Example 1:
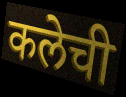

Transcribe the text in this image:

कलेची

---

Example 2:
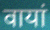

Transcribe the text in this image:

वायां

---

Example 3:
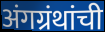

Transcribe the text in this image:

अंगग्रंथांची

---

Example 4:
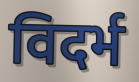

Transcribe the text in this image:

विदर्भ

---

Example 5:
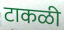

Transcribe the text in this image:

टाकळी